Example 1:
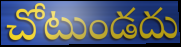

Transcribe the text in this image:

చోటుండదు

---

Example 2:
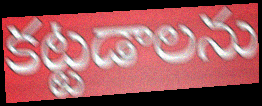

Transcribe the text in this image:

కట్టడాలను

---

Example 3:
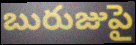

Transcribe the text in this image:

బురుజుపై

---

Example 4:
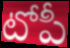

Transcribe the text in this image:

టోపీ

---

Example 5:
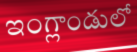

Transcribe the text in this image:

ఇంగ్లాండులో